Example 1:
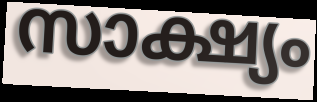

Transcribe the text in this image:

സാക്ഷ്യം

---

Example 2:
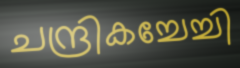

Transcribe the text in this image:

ചന്ദ്രികച്ചേച്ചി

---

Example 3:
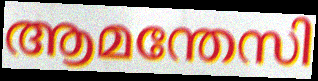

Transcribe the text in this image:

ആമന്തേസി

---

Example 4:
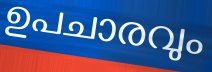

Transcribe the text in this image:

ഉപചാരവും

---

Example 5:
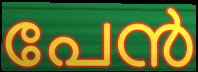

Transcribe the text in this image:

പേൻ